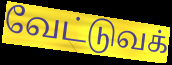
வேட்டுவக்